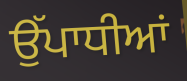
ਉੱਪਾਧੀਆਂ